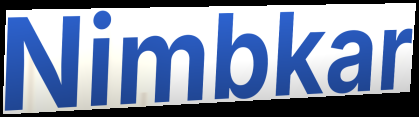
Nimbkar